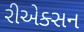
રીએક્સન